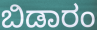
ಬಿಡಾರಂ